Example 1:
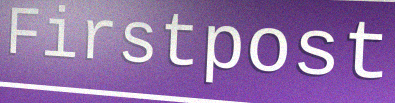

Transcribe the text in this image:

Firstpost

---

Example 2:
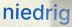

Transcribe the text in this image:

niedrig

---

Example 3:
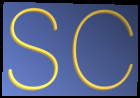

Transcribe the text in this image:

SC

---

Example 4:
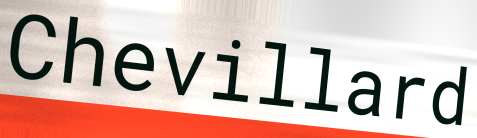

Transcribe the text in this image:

Chevillard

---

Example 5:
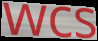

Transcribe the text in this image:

wcs